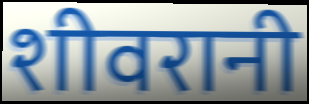
शीवरानी